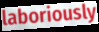
laboriously